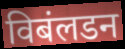
विबंलडन